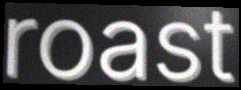
roast